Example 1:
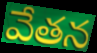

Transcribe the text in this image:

వేతన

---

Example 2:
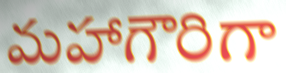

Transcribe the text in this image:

మహాగౌరిగా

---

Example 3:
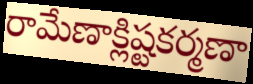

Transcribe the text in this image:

రామేణాక్లిష్టకర్మణా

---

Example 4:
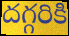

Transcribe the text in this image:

దగ్గరికి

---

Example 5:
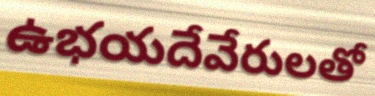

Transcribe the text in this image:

ఉభయదేవేరులతో